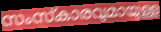
സംസ്‌കാരവുമായുള്ള